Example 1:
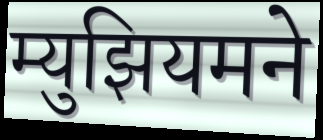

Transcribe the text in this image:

म्युझियमने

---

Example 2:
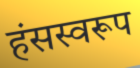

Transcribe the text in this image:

हंसस्वरूप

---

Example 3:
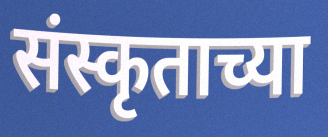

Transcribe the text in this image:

संस्कृताच्या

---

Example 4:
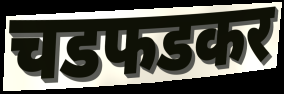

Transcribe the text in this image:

चडफडकर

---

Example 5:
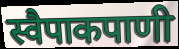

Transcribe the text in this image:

स्वैपाकपाणी